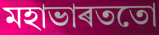
মহাভাৰততো